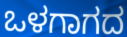
ಒಳಗಾಗದ